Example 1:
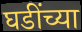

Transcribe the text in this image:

घडींच्या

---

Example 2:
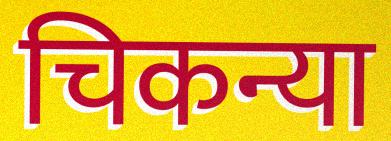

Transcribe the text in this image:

चिकन्या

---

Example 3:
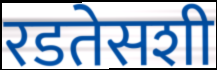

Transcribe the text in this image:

रडतेसशी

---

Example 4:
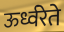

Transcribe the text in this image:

ऊर्ध्वरेते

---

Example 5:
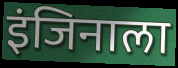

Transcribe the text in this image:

इंजिनाला